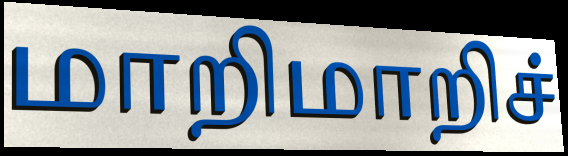
மாறிமாறிச்